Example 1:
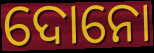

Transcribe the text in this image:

ଦୋନୋ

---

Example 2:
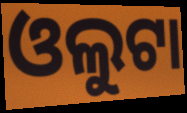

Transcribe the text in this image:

ଓଲୁଟା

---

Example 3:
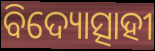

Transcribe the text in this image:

ବିଦ୍ୟୋତ୍ସାହୀ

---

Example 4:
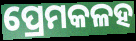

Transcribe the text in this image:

ପ୍ରେମକଳହ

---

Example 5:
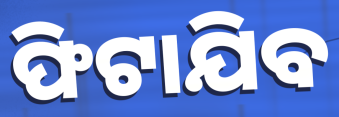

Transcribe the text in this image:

ଫିଟାଯିବ